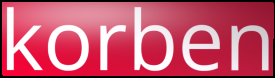
korben